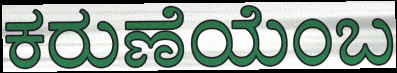
ಕರುಣೆಯೆಂಬ